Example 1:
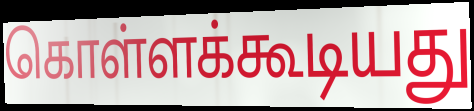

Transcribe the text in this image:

கொள்ளக்கூடியது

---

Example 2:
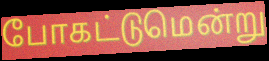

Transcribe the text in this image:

போகட்டுமென்று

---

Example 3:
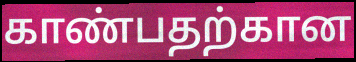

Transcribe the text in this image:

காண்பதற்கான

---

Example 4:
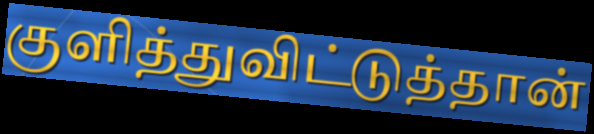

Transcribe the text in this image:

குளித்துவிட்டுத்தான்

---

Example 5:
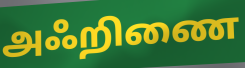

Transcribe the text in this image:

அஃறிணை